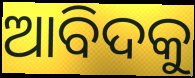
ଆବିଦକୁ